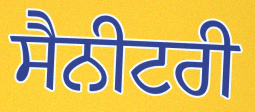
ਸੈਨੀਟਰੀ